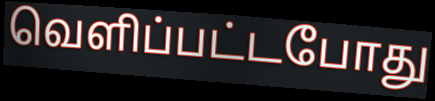
வெளிப்பட்டபோது